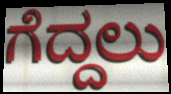
ಗೆದ್ದಲು